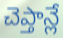
చెప్తాన్లే